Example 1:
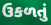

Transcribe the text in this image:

ઉકળતું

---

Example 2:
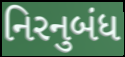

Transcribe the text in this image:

નિરનુબંધ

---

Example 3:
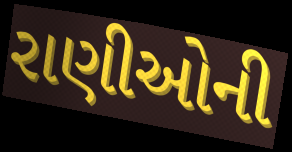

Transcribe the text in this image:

રાણીઓની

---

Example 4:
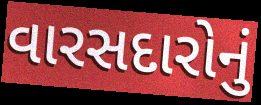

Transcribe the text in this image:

વારસદારોનું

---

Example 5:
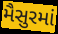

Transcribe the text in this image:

મૈસુરમાં